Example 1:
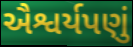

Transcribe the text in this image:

ઐશ્વર્યપણું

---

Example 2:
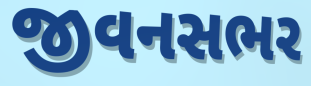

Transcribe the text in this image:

જીવનસભર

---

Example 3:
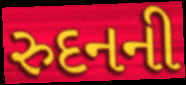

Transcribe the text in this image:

રુદનની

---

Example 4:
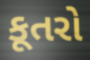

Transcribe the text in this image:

કૂતરો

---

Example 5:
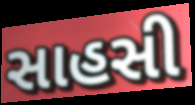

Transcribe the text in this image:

સાહસી